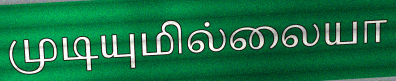
முடியுமில்லையா